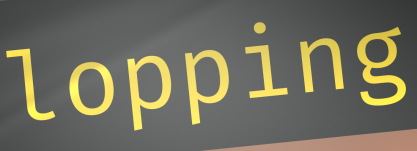
lopping